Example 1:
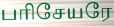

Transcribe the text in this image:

பரிசேயரே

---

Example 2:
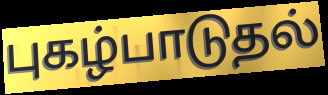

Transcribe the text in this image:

புகழ்பாடுதல்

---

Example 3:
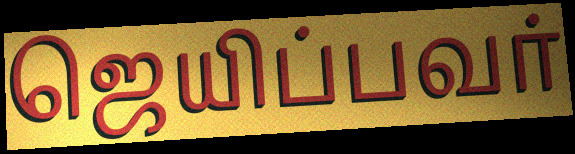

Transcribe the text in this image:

ஜெயிப்பவர்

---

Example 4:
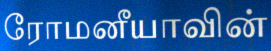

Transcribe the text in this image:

ரோமனீயாவின்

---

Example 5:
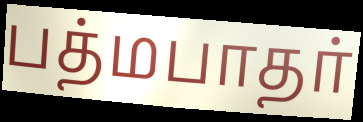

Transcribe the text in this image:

பத்மபாதர்